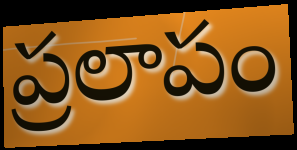
ప్రలాపం